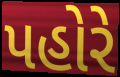
પહોરે